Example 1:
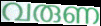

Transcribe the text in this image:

വരുണ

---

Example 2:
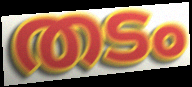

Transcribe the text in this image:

തടം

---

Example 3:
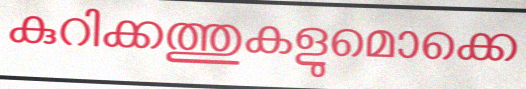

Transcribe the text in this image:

കുറിക്കത്തുകളുമൊക്കെ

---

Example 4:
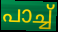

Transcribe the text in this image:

പാച്ച്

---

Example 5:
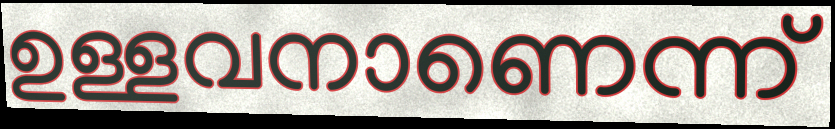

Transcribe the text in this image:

ഉള്ളവനാണെന്ന്